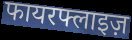
फायरफ्लाइज़